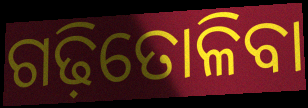
ଗଢ଼ିତୋଳିବା